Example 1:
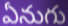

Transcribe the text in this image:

ఏనుగు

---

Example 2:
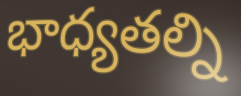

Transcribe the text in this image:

భాధ్యతల్ని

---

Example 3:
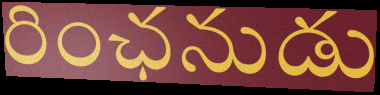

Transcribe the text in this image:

రింఛనుడు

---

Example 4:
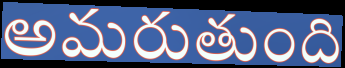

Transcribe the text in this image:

అమరుతుంది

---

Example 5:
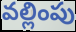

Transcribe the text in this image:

వల్లింపు